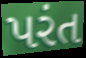
પરંત